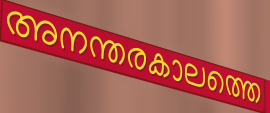
അനന്തരകാലത്തെ